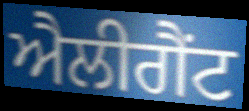
ਐਲੀਗੈਂਟ